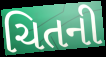
ચિતની